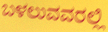
ಬಳಲುವವರಲ್ಲಿ